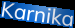
Karnika